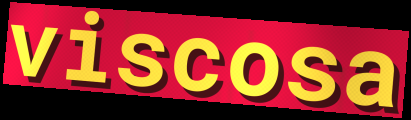
viscosa